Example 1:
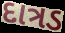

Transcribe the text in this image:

દાત્રડ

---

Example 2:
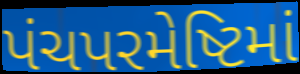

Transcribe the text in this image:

પંચપરમેષ્ટિમાં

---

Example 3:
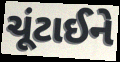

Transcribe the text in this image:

ચૂંટાઈને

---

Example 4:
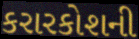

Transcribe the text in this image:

કરારકોશની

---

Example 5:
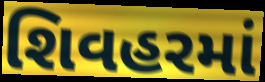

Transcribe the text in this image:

શિવહરમાં